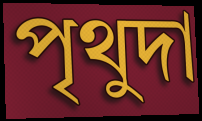
পৃথুদা